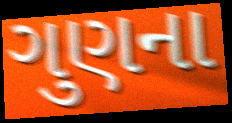
ગુણના